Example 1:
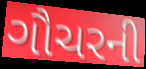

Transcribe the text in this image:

ગૌચરની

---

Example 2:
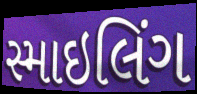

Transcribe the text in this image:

સ્માઇલિંગ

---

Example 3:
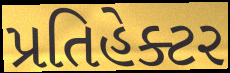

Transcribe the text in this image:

પ્રતિહેક્ટર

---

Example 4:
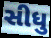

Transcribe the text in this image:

સીધુ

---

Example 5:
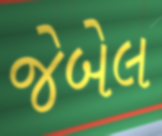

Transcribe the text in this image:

જેબેલ